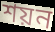
শয়ন